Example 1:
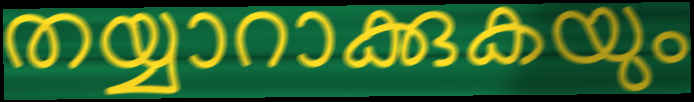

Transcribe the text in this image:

തയ്യാറാക്കുകയും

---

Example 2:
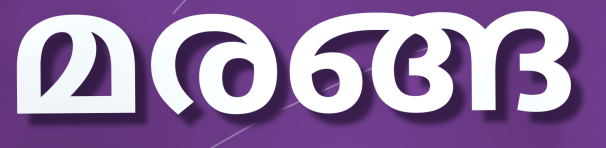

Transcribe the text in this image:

മരങ്ങ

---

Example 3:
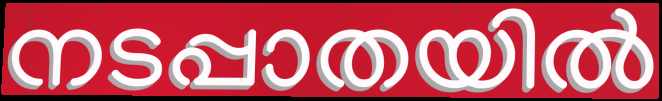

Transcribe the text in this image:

നടപ്പാതയിൽ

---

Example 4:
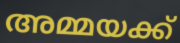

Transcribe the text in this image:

അമ്മയക്ക്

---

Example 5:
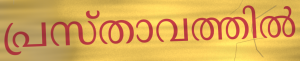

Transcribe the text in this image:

പ്രസ്താവത്തിൽ